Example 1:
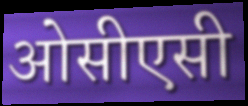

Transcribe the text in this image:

ओसीएसी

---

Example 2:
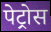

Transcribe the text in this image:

पेट्रोस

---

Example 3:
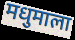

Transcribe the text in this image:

मधुमाला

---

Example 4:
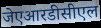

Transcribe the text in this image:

जेएआरडीसीएल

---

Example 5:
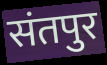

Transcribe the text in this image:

संतपुर